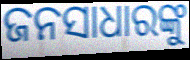
ଜନସାଧାରଙ୍କୁ